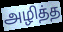
அழித்த